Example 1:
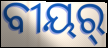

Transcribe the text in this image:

ବୀୟର୍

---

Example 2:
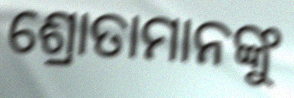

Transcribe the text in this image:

ଶ୍ରୋତାମାନଙ୍କୁ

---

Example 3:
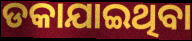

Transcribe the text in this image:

ଡକାଯାଇଥିବା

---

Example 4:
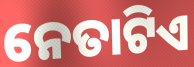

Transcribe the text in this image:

ନେତାଟିଏ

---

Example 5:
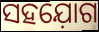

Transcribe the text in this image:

ସହଯ଼ୋଗ